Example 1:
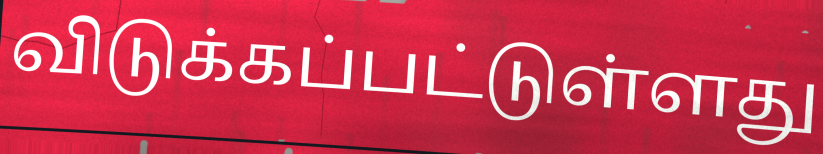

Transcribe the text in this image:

விடுக்கப்பட்டுள்ளது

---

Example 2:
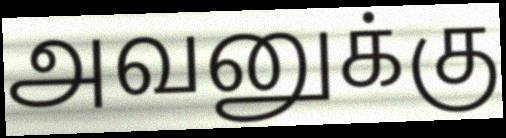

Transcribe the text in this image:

அவனுக்கு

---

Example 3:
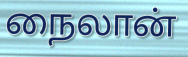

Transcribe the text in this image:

நைலான்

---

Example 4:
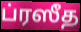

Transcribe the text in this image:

ப்ரஸீத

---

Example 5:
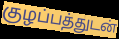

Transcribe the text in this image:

குழப்பத்துடன்